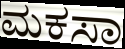
ಮಕಸಾ